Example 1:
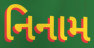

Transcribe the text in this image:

નિનામ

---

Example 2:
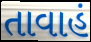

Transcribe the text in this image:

તાવાહં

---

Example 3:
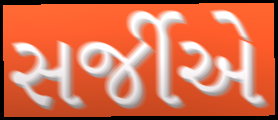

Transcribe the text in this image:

સર્જીએ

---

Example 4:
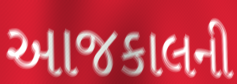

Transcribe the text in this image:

આજકાલની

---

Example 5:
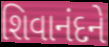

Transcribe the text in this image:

શિવાનંદને